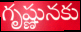
గృష్ణునకు